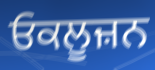
ਓਕਲੂਜ਼ਨ